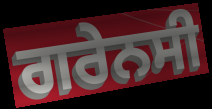
ਗਰੇਨਸੀ